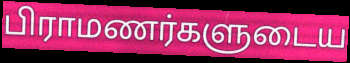
பிராமணர்களுடைய